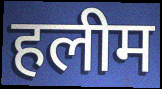
हलीम